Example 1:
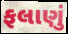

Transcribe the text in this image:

ફલાણું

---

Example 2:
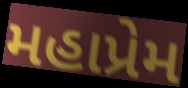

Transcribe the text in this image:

મહાપ્રેમ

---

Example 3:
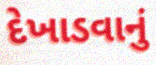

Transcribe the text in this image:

દેખાડવાનું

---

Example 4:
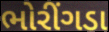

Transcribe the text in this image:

ભોરીંગડા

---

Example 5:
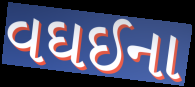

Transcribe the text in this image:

વઘઈના